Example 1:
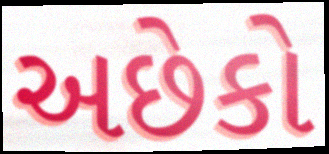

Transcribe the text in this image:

અછેકો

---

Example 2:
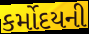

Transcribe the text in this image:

કર્મોદયની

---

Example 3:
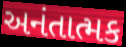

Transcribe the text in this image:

અનંતાત્મક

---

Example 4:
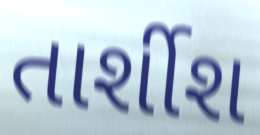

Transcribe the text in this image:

તાર્શીશ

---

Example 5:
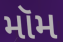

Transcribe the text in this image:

મૉમ